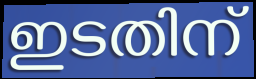
ഇടതിന്